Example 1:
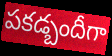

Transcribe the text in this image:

పకడ్బందీగా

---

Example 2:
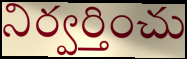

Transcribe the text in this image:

నిర్వర్తించు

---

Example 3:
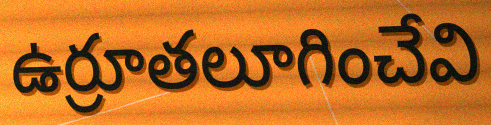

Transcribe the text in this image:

ఉర్రూతలూగించేవి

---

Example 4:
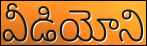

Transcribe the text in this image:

వీడియోని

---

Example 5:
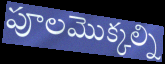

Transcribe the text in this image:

పూలమొక్కల్ని